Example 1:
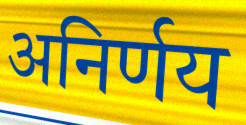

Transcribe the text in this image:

अनिर्णय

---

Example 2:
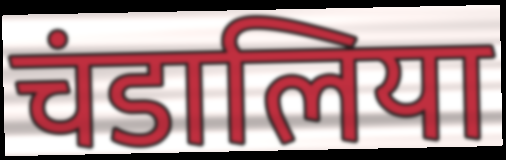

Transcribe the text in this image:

चंडालिया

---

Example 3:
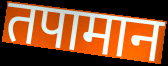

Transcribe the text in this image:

तपामान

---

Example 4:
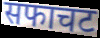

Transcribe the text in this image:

सफाचट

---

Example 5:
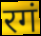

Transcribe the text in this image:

रगं